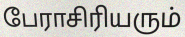
பேராசிரியரும்